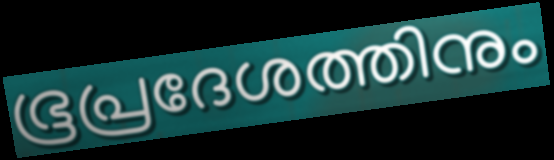
ഭൂപ്രദേശത്തിനും